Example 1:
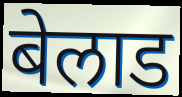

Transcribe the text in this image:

बेलाड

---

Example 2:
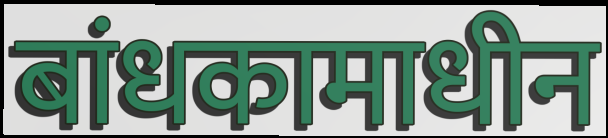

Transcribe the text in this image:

बांधकामाधीन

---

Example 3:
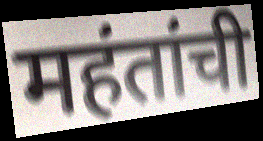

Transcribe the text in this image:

महंतांची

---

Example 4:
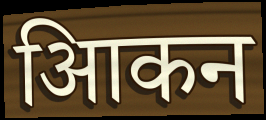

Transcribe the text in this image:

आिकन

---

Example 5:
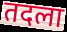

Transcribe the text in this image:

तदला